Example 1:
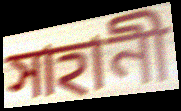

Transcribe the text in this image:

সাহানী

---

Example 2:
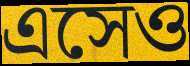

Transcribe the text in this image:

এসেও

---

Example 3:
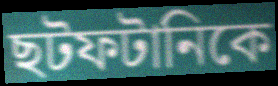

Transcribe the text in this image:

ছটফটানিকে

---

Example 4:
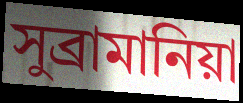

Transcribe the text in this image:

সুব্রামানিয়া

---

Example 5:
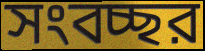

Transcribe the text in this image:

সংবচ্ছর